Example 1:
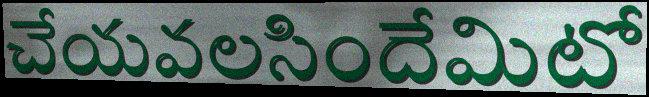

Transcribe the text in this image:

చేయవలసిందేమిటో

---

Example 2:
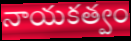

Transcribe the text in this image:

నాయకత్వం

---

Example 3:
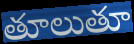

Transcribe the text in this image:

తూలుతూ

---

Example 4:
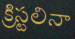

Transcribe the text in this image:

క్రిస్టలినా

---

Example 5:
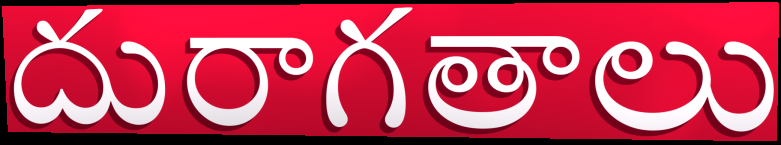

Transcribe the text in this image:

దురాగతాలు